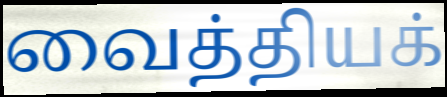
வைத்தியக்